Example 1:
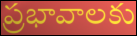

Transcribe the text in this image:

ప్రభావాలకు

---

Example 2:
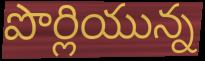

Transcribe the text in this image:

పొర్లియున్న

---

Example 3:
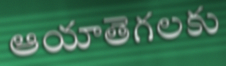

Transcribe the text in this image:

ఆయాతెగలకు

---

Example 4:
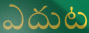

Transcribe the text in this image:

ఎదుట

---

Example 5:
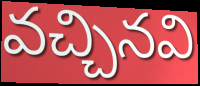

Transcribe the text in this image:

వచ్చినవి